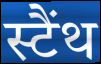
स्टैंथ